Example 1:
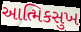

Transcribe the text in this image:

આત્મિકસુખ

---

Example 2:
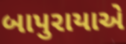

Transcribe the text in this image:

બાપુરાયાએ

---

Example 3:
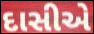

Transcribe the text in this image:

દાસીએ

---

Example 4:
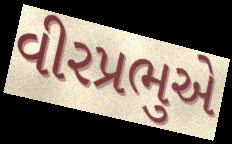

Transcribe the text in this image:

વીરપ્રભુએ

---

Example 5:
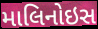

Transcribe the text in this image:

માલિનોઇસ